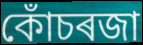
কোঁচৰজা